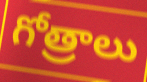
గోత్రాలు